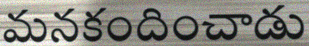
మనకందించాడు